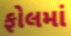
ફોલમાં